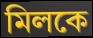
মিলকে